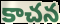
కాచన